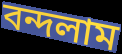
বন্দলাম